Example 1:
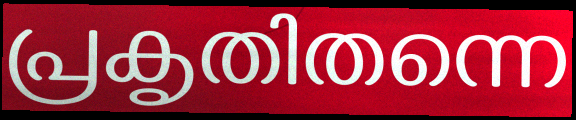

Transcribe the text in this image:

പ്രകൃതിതന്നെ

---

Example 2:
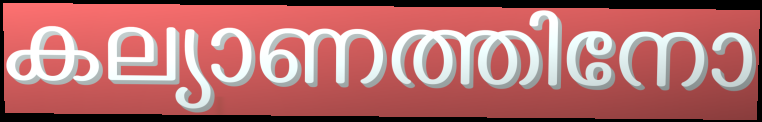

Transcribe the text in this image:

കല്യാണത്തിനോ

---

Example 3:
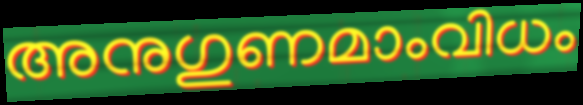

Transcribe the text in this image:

അനുഗുണമാംവിധം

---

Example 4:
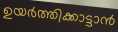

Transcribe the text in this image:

ഉയർത്തിക്കാട്ടാൻ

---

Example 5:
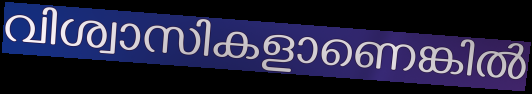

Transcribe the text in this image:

വിശ്വാസികളാണെങ്കിൽ